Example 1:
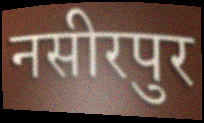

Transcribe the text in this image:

नसीरपुर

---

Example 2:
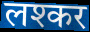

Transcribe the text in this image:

लश्‍कर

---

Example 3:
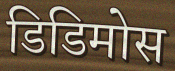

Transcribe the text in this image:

डिडिमोस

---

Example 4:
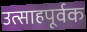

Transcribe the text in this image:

उत्‍साहपूर्वक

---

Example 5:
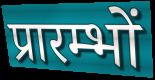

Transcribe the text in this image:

प्रारम्भों